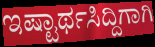
ಇಷ್ಟಾರ್ಥಸಿದ್ದಿಗಾಗಿ